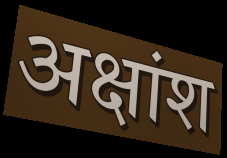
अक्षांश